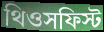
থিওসফিস্ট